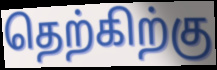
தெற்கிற்கு